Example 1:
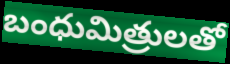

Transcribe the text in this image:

బంధుమిత్రులతో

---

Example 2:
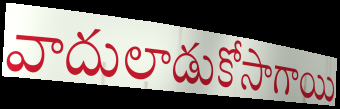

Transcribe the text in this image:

వాదులాడుకోసాగాయి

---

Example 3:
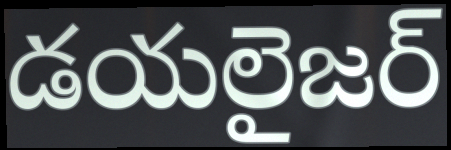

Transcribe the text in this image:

డయలైజర్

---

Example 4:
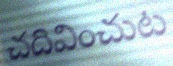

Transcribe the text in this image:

చదివించుట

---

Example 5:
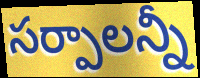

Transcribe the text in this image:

సర్పాలన్నీ